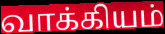
வாக்கியம்